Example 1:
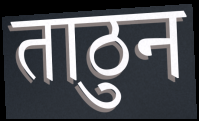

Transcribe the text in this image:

ताठुन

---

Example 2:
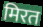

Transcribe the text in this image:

मिरत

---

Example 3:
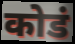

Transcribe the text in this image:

कोडं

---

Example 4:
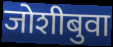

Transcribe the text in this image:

जोशीबुवा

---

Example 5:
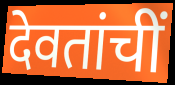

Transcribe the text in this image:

देवतांचीं